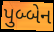
પુબ્બેન